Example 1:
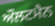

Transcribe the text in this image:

ਔਲਟਮੈਨ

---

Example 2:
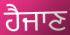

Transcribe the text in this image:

ਹੈਜਾਣ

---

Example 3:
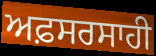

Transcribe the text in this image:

ਅਫ਼ਸਰਸਾਹੀ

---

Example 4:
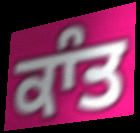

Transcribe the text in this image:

ਕਾੰਤ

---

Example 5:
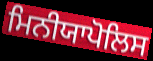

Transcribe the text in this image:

ਮਿਨੀਯਾਪੋਲਿਸ